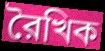
রৈখিক